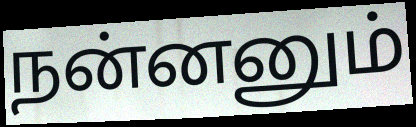
நன்னனும்